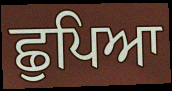
ਛੁਪਿਆ